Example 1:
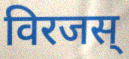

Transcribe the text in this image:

विरजस्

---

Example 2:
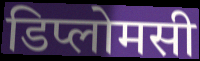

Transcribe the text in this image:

डिप्लोमसी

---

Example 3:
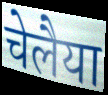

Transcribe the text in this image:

चेलैया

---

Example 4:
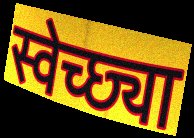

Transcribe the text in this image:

स्वेच्छ्या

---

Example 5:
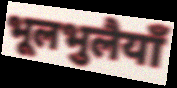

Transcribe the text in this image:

भूलभुलैयाँ